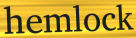
hemlock